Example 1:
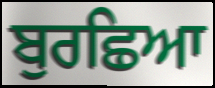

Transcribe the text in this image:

ਬੁਰਛਿਆ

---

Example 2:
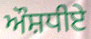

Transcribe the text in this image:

ਔਸ਼ਧੀਏ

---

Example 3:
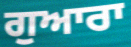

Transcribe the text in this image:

ਗੁਆਰਾ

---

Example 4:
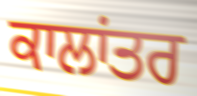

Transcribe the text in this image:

ਕਾਲਾਂਤਰ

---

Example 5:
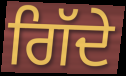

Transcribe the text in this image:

ਗਿੱਦੇ